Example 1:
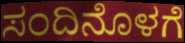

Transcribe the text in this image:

ಸಂದಿನೊಳಗೆ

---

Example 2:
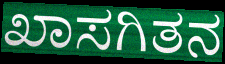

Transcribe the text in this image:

ಖಾಸಗಿತನ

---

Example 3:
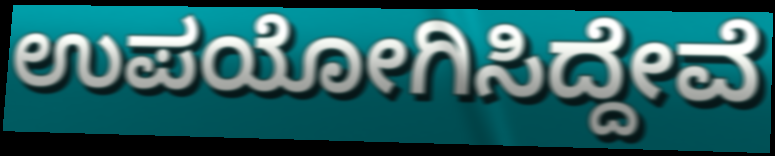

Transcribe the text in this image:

ಉಪಯೋಗಿಸಿದ್ದೇವೆ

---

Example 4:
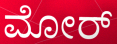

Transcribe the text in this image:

ಮೋರ್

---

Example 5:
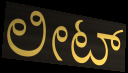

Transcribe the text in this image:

ಲೀಟ್